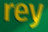
rey